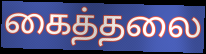
கைத்தலை